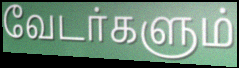
வேடர்களும்